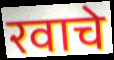
रवाचे